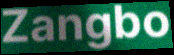
Zangbo